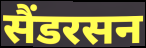
सैंडरसन